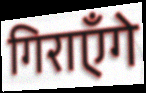
गिराएँगे